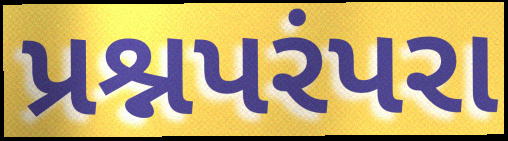
પ્રશ્નપરંપરા